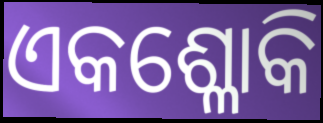
ଏକଶ୍ଳୋକି